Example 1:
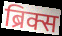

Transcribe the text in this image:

ब्रिक्स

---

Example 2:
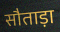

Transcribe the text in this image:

सौताड़ा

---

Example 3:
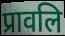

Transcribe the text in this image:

प्रावलि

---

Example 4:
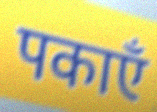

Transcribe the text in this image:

पकाएँ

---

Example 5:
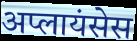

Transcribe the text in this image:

अप्लायंसेस